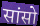
सांसो